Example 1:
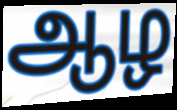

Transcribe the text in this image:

ஆழ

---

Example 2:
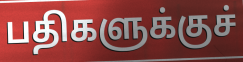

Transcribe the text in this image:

பதிகளுக்குச்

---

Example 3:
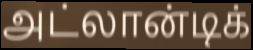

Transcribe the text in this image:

அட்லான்டிக்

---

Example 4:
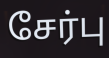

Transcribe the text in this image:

சேர்பு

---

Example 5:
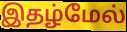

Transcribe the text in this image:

இதழ்மேல்